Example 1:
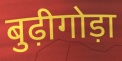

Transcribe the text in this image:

बुढ़ीगोड़ा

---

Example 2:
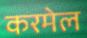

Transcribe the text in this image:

करमेल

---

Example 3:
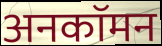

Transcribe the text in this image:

अनकॉमन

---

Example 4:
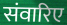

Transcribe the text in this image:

संवारिए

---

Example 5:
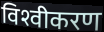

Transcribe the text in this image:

विश्वीकरण